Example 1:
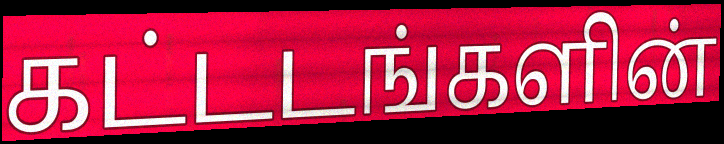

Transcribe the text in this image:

கட்டடங்களின்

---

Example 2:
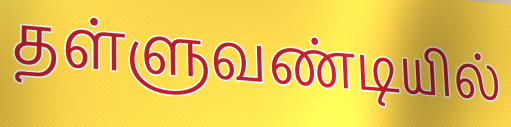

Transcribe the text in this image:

தள்ளுவண்டியில்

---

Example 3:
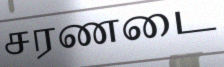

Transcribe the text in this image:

சரணடை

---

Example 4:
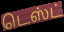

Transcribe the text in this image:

டெஸ்ட்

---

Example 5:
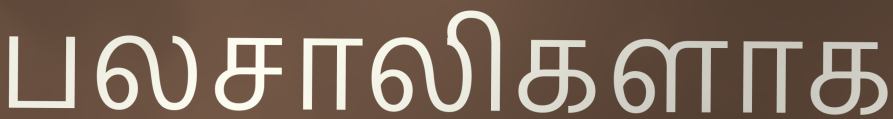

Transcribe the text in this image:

பலசாலிகளாக